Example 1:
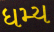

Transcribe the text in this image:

ધમ્ય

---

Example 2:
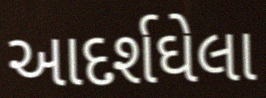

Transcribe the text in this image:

આદર્શઘેલા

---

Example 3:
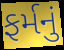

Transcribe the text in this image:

ફર્મનું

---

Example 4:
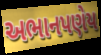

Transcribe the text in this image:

અભાનપણેય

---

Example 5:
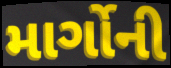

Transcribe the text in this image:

માર્ગોની